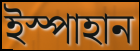
ইস্পাহান